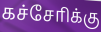
கச்சேரிக்கு